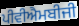
ਪੀਵੀਐਮਬੀਜੀ